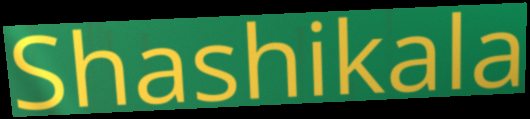
Shashikala